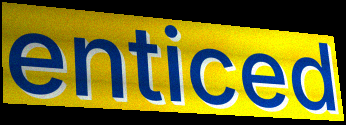
enticed